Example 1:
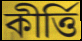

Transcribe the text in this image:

কীর্ত্তি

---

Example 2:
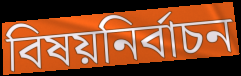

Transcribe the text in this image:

বিষয়নির্বাচন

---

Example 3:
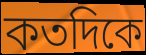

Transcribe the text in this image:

কতদিকে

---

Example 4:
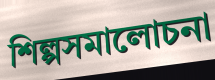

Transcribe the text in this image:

শিল্পসমালোচনা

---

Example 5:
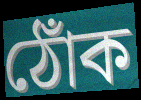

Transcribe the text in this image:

ঠোঁক